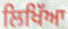
ਲਿਖਿੱਆ